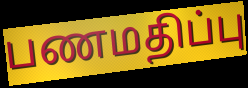
பணமதிப்பு